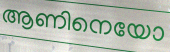
ആണിനെയോ